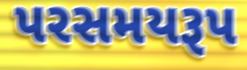
પરસમયરૂપ